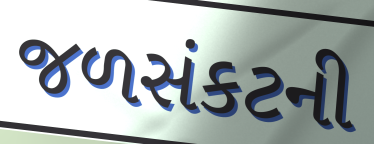
જળસંકટની